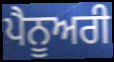
ਪੈਨੂਅਰੀ